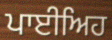
ਪਾਈਅਿਹ